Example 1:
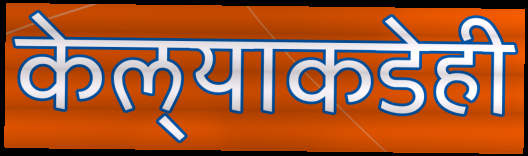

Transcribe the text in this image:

केल्याकडेही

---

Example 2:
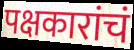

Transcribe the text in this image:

पक्षकारांचं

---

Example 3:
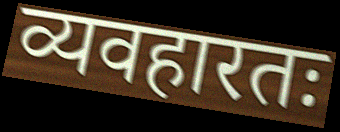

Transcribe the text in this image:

व्यवहारतः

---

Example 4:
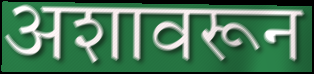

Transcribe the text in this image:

अशावरून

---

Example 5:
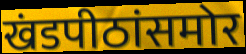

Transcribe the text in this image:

खंडपीठांसमोर